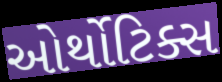
ઓર્થોટિક્સ